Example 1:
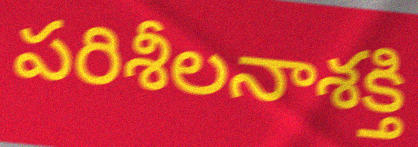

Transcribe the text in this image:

పరిశీలనాశక్తి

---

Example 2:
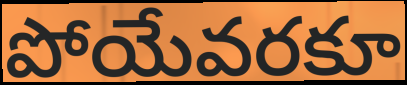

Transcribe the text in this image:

పోయేవరకూ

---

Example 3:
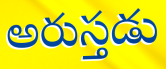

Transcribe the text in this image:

అరుస్తడు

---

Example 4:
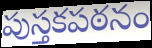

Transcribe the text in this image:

పుస్తకపఠనం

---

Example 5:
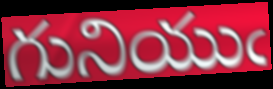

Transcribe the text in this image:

గునియుఁ